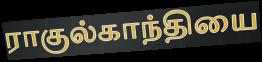
ராகுல்காந்தியை